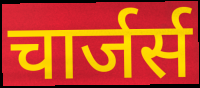
चार्जर्स